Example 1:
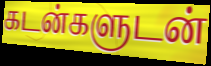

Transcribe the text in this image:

கடன்களுடன்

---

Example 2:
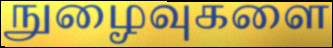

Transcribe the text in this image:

நுழைவுகளை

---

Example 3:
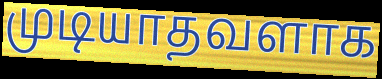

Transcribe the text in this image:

முடியாதவளாக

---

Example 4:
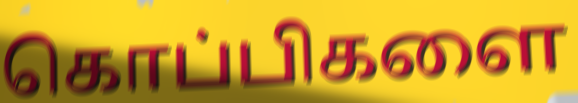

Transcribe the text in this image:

கொப்பிகளை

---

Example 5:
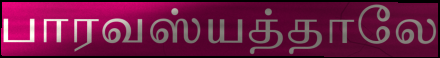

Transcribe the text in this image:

பாரவஸ்யத்தாலே